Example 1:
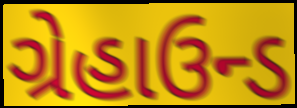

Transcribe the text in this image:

ગ્રેહાઉન્ડ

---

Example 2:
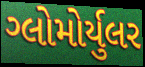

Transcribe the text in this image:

ગ્લોમોર્યુલર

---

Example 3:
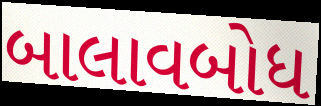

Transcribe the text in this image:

બાલાવબોધ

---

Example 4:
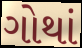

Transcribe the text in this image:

ગોથાં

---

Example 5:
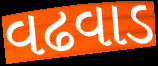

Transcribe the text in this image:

વઢવાડ